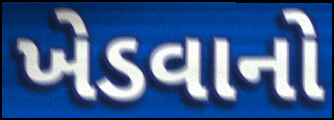
ખેડવાનો